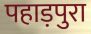
पहाड़पुरा